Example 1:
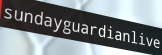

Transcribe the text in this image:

sundayguardianlive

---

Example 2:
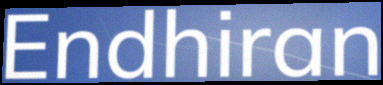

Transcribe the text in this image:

Endhiran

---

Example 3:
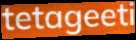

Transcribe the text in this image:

tetageeti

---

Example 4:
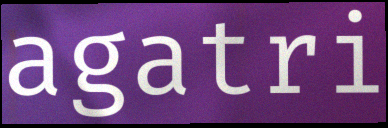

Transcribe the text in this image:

agatri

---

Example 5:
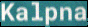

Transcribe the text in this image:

Kalpna